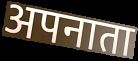
अपनाता